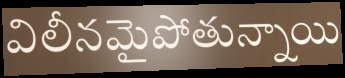
విలీనమైపోతున్నాయి